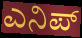
ಎನಿಪ್